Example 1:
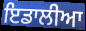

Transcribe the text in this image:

ਇਡਾਲੀਆ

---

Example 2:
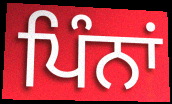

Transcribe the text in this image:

ਪਿੰਨਾਂ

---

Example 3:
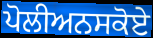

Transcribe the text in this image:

ਪੋਲੀਅਨਸਕੋਏ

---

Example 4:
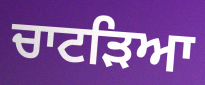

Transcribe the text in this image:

ਚਾਟੜਿਆ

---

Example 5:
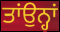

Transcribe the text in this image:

ਤਾਂਉਨ੍ਹਾਂ